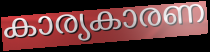
കാര്യകാരണ